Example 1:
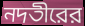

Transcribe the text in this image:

নদতীরের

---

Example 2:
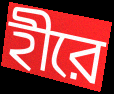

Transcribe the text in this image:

হীরে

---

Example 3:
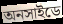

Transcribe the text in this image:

অনসাইডে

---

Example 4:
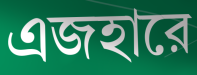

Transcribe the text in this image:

এজহারে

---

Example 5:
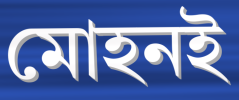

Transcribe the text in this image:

মোহনই